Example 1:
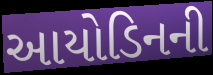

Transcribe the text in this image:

આયોડિનની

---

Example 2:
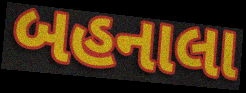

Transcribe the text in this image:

બહનાલા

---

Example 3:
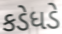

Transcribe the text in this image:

કડેધડે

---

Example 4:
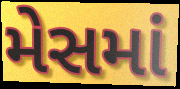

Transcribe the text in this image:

મેસમાં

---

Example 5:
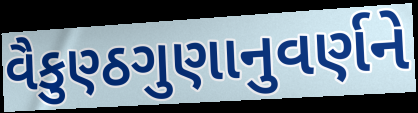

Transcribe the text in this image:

વૈકુણ્ઠગુણાનુવર્ણને